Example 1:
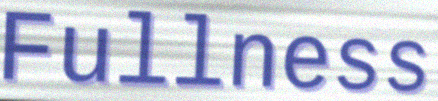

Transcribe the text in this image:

Fullness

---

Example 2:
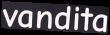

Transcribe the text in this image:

vandita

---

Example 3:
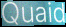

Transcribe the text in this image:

Quaid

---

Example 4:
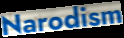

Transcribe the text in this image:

Narodism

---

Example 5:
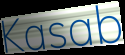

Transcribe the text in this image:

Kasab